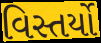
વિસ્તર્યો